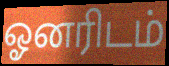
ஓனரிடம்